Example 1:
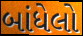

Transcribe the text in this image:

બાંધેલો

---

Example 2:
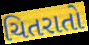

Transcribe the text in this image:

ચિતરાતો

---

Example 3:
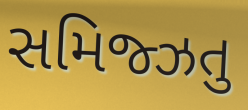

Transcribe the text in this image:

સમિજ્ઝતુ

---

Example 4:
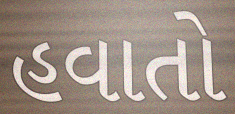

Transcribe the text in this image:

હવાતો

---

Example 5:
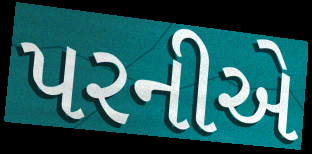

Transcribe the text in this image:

પરનીએ